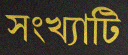
সংখ্যাটি